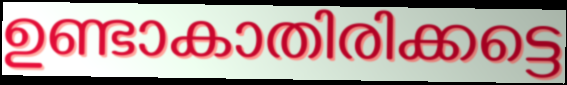
ഉണ്ടാകാതിരിക്കട്ടെ